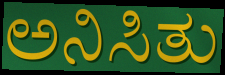
ಅನಿಸಿತು